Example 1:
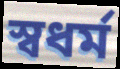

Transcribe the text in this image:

স্বধর্ম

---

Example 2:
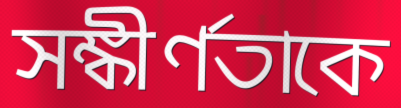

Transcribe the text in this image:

সঙ্কীর্ণতাকে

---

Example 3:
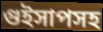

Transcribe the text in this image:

গুইসাপসহ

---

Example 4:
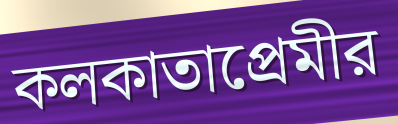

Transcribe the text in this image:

কলকাতাপ্রেমীর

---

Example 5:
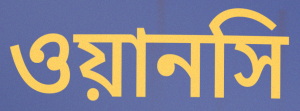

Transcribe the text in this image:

ওয়ানসি